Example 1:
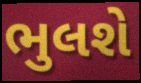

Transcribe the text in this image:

ભુલશે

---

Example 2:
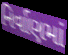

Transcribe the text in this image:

નિર્વાણમાં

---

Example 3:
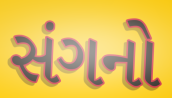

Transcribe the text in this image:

સંગનો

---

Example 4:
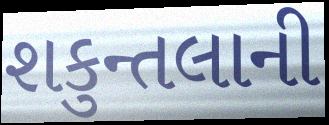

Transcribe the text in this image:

શકુન્તલાની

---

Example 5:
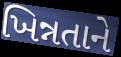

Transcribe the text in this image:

ખિન્નતાને